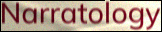
Narratology